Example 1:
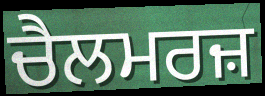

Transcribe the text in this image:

ਚੈਲਮਰਜ਼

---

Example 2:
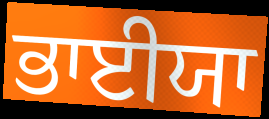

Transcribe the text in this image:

ਭਾਈਯਾ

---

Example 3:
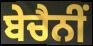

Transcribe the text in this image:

ਬੇਚੈਨੀਂ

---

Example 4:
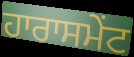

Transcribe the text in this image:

ਹਾਰਾਸਮੇਂਟ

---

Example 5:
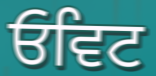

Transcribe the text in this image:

ਓਵਿਟ